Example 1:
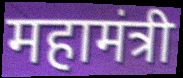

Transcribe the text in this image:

महामंत्री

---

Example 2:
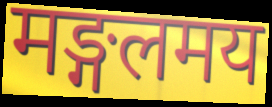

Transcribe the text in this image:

मङ्गलमय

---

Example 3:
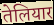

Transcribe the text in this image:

तेलियार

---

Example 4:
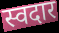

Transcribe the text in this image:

स्वदार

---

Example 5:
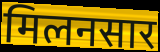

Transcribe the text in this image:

मिलनसार